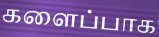
களைப்பாக